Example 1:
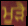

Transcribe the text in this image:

ਮੂੜੈ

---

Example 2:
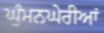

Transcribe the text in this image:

ਘੁੰਮਨਘੇਰੀਆਂ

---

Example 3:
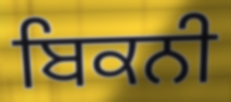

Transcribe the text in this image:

ਬਿਕਨੀ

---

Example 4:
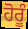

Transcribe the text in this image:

ਹੋਰੂੰ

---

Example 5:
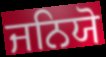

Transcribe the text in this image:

ਜਨਿਯੋ